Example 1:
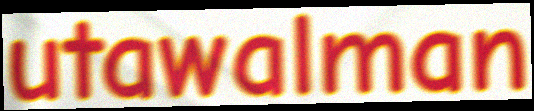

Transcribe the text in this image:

utawalman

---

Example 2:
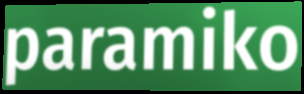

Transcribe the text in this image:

paramiko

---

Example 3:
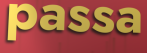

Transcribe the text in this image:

passa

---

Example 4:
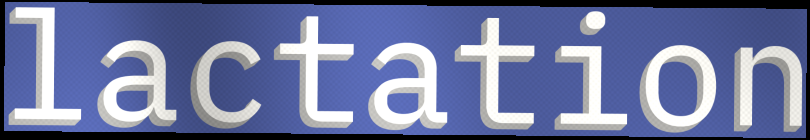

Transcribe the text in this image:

lactation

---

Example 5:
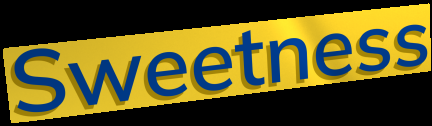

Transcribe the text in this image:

Sweetness